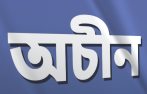
অচীন